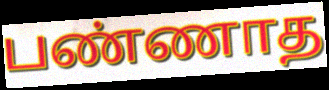
பண்ணாத